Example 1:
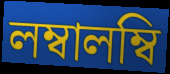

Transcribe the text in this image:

লম্বালম্বি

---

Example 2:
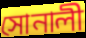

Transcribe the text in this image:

সোনালী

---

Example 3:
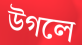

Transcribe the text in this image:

উগলে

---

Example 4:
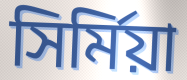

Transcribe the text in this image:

সির্মিয়া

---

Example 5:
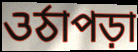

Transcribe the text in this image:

ওঠাপড়া